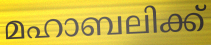
മഹാബലിക്ക്